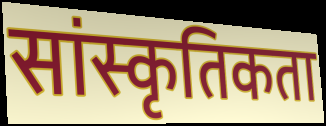
सांस्कृतिकता